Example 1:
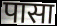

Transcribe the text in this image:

पासा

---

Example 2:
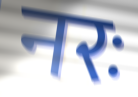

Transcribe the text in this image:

नरः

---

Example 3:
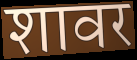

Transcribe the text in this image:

शावर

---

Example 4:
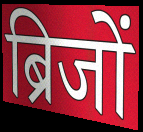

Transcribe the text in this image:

ब्रिजों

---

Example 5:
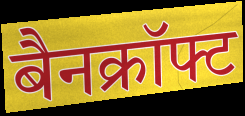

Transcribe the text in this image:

बैनक्रॉफ्ट